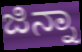
ಜಿನ್ನಾ